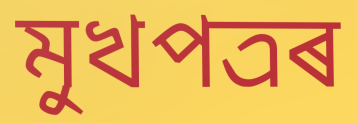
মুখপত্ৰৰ